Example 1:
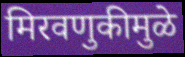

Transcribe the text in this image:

मिरवणुकीमुळे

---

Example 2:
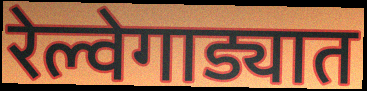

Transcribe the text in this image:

रेल्वेगाड्यात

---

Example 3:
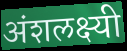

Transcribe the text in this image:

अंशलक्ष्यी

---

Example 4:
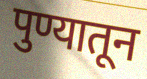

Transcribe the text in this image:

पुण्यातून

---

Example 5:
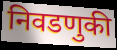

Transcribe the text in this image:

निवडणुकी